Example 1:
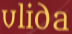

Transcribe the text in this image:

ulida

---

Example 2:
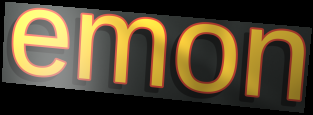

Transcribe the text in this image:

emon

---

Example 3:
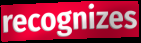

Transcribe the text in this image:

recognizes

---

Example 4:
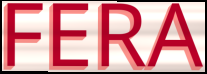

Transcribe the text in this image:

FERA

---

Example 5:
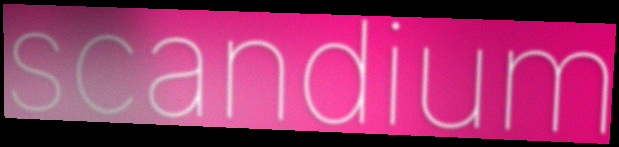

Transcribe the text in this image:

scandium